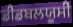
ਡੀਡਬਲਯੂਸੀ